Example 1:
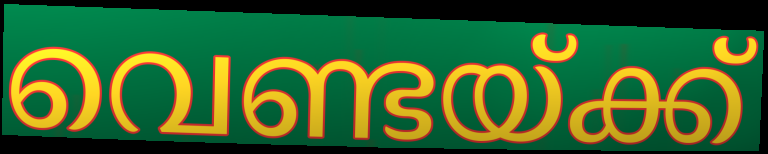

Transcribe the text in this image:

വെണ്ടയ്ക്ക്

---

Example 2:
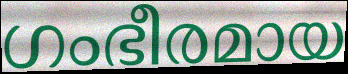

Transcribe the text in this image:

ഗംഭീരമായ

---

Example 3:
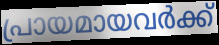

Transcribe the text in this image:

പ്രായമായവർക്ക്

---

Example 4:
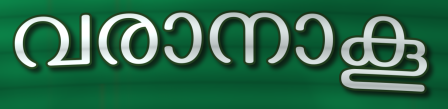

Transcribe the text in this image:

വരാനാകൂ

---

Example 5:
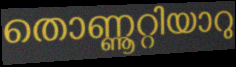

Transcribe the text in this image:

തൊണ്ണൂറ്റിയാറു